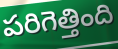
పరిగెత్తింది